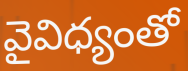
వైవిధ్యంతో